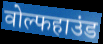
वोल्फहाउंड